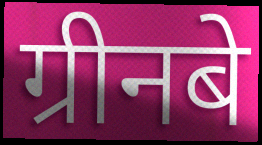
ग्रीनबे